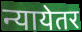
न्यायेतर